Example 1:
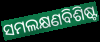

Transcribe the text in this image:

ସମଲକ୍ଷଣବିଶିଷ୍ଟ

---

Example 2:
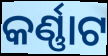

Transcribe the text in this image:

କର୍ଣ୍ଣାଟ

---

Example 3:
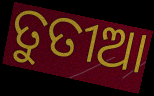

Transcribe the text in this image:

ତୁତୀଆ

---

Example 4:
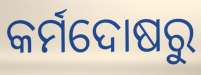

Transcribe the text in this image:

କର୍ମଦୋଷରୁ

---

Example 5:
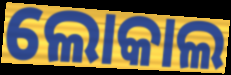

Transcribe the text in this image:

ଲୋକାଲ